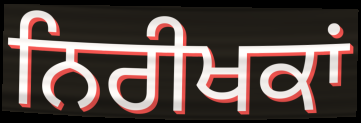
ਨਿਰੀਖਕਾਂ